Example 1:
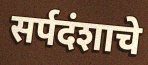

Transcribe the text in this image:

सर्पदंशाचे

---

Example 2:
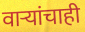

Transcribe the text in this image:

वाऱ्यांचाही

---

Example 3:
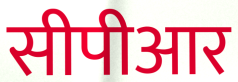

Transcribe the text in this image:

सीपीआर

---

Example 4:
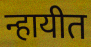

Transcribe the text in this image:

न्हायीत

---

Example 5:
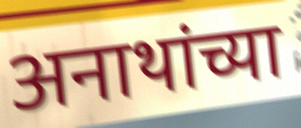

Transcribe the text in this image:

अनाथांच्या